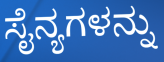
ಸೈನ್ಯಗಳನ್ನು